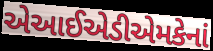
એઆઈએડીએમકેનાં